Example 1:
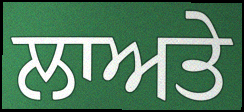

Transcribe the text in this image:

ਲਾਅਤੇ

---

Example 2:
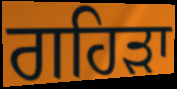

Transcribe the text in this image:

ਗਹਿੜਾ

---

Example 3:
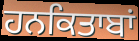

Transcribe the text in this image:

ਹਨਕਿਤਾਬਾਂ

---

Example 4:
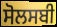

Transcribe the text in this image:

ਸੋਲਸਬੀ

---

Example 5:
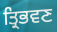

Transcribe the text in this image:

ਤ੍ਰਿਭਵਣ